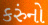
કરુંનો